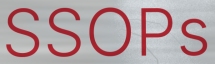
SSOPs